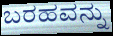
ಬರಹವನ್ನು